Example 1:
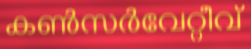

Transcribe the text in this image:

കൺസർവേറ്റീവ്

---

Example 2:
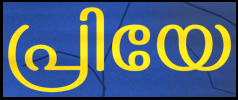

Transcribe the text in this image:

പ്രിയേ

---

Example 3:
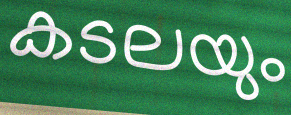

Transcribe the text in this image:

കടലയും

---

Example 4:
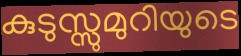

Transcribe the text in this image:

കുടുസ്സുമുറിയുടെ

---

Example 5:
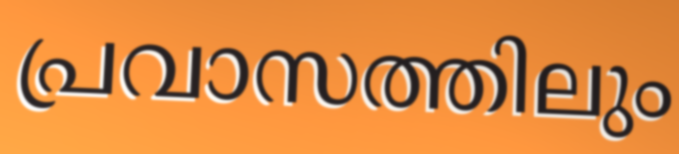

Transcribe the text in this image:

പ്രവാസത്തിലും